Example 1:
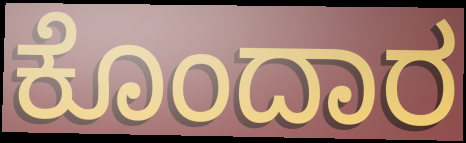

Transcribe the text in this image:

ಕೊಂದಾರ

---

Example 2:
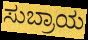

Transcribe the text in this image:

ಸುಬ್ರಾಯ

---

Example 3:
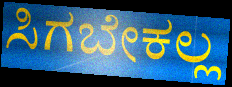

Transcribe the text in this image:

ಸಿಗಬೇಕಲ್ಲ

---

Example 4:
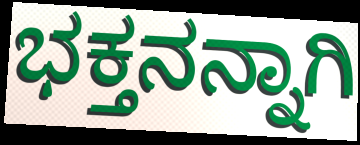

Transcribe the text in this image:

ಭಕ್ತನನ್ನಾಗಿ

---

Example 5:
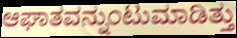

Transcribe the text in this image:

ಆಘಾತವನ್ನುಂಟುಮಾಡಿತ್ತು